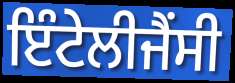
ਇੰਟੇਲੀਜੈਂਸੀ